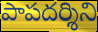
పాపదర్శిని